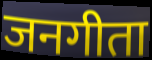
जनगीता